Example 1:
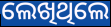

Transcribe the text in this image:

ଲେଖିଥିଲେ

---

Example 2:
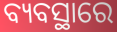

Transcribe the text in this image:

ବ୍ୟବସ୍ଥାରେ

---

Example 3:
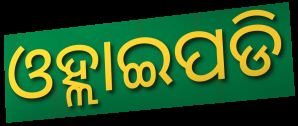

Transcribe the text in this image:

ଓହ୍ଲାଇପଡି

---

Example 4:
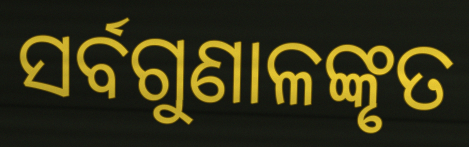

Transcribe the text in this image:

ସର୍ବଗୁଣାଳଙ୍କୃତ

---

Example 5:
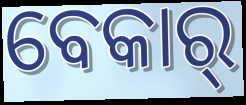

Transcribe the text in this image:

ବେକାର୍